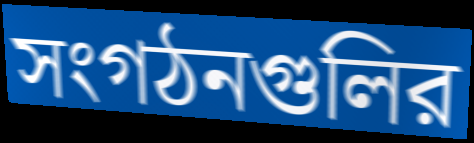
সংগঠনগুলির